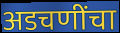
अडचणींचा